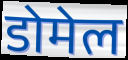
डोमेल